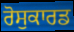
ਰੋਸੁਕਾਰਡ